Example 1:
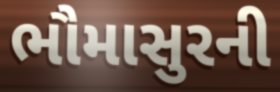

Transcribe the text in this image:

ભૌમાસુરની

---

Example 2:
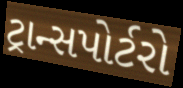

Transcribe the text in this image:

ટ્રાન્સપોર્ટરો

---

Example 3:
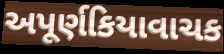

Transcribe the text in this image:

અપૂર્ણકિયાવાચક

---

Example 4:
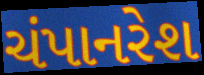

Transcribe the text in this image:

ચંપાનરેશ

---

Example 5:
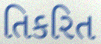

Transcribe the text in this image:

તિકરિત